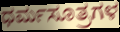
ಧರ್ಮಸೂತ್ರಗಳ